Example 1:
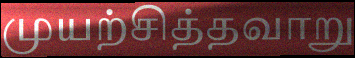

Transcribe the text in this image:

முயற்சித்தவாறு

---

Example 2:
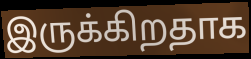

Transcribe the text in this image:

இருக்கிறதாக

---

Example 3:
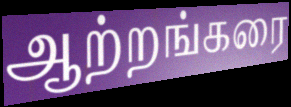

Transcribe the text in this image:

ஆற்றங்கரை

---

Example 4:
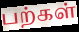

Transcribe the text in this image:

பற்கள்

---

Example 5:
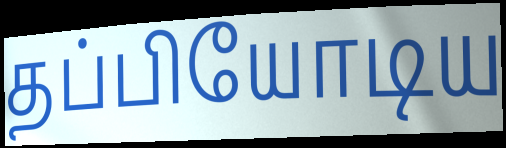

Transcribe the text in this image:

தப்பியோடிய